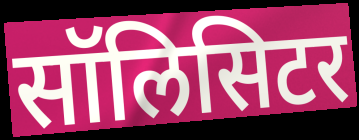
सॉलिसिटर